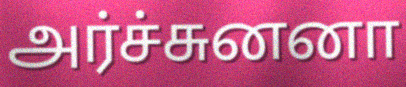
அர்ச்சுனனா